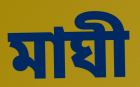
মাঘী